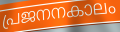
പ്രജനനകാലം